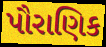
પૌરાણિક